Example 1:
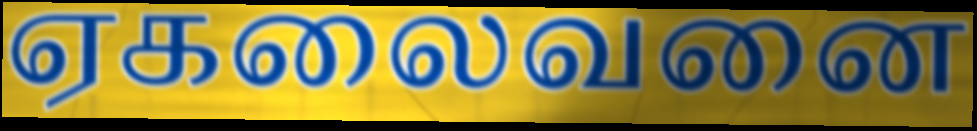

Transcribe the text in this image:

ஏகலைவனை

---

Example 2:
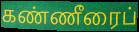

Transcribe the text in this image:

கண்ணீரைப்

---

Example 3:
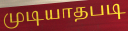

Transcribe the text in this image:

முடியாதபடி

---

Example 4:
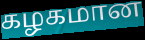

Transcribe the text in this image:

கழகமான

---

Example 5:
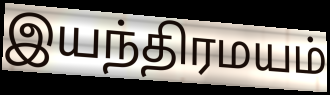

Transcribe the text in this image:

இயந்திரமயம்